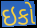
ઇકો